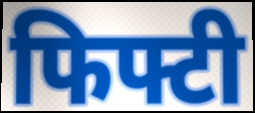
फिफ्टी